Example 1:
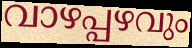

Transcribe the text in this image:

വാഴപ്പഴവും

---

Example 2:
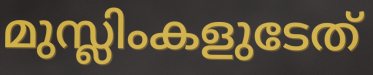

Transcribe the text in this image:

മുസ്ലിംകളുടേത്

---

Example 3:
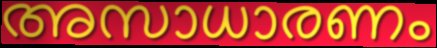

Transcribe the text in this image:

അസാധാരണം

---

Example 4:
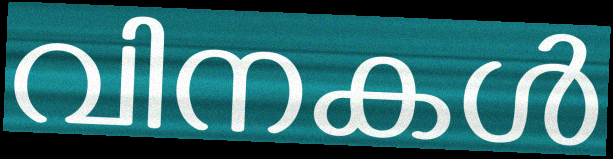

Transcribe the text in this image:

വിനകൾ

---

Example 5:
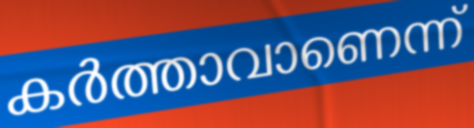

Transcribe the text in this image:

കർത്താവാണെന്ന്